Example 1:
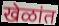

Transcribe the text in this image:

खेळांत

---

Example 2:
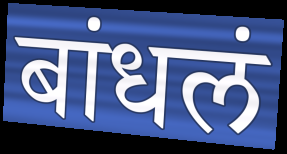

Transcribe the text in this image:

बांधलं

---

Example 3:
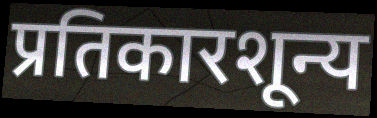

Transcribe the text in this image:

प्रतिकारशून्य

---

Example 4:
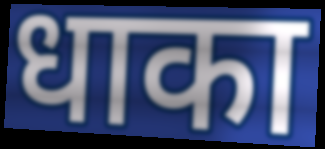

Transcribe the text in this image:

धाका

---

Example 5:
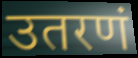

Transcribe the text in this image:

उतरणं